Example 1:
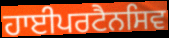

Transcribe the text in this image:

ਹਾਈਪਰਟੈਨਸਿਵ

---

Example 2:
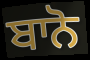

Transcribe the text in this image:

ਬਾਨੋ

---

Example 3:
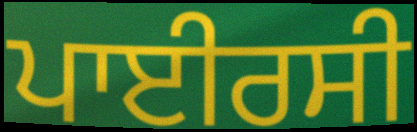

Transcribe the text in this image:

ਪਾਈਰਸੀ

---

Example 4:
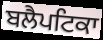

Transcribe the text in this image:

ਬਲੈਪਟਿਕਾ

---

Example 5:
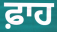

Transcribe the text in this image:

ਫ਼ਾਹ